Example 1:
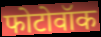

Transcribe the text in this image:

फोटोवॉक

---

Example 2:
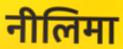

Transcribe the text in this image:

नीलिमा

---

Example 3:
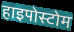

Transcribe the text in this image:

हाइपोस्टोम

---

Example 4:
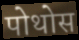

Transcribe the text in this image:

पोथोस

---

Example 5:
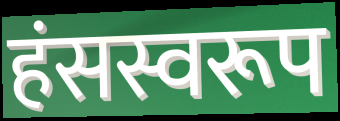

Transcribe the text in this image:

हंसस्वरूप